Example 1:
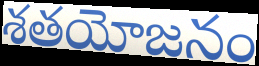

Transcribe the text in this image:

శతయోజనం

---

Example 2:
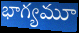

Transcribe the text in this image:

భాగ్యమూ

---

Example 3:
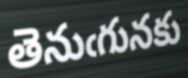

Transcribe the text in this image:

తెనుఁగునకు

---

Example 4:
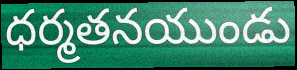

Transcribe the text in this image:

ధర్మతనయుండు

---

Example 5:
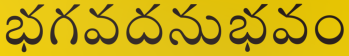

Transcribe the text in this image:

భగవదనుభవం